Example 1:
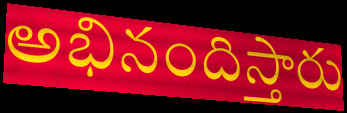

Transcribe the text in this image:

అభినందిస్తారు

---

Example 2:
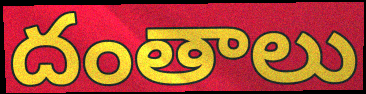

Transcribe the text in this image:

దంతాలు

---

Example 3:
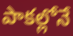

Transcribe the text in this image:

పాకల్లోనే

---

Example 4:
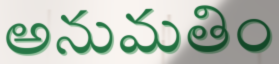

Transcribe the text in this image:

అనుమతిం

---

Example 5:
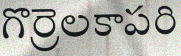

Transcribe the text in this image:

గొర్రెలకాపరి